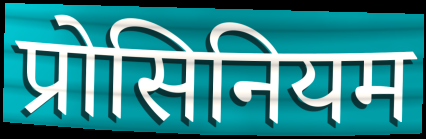
प्रोसिनियम